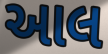
આલ